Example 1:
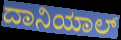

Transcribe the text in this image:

ದಾನಿಯಾಲ್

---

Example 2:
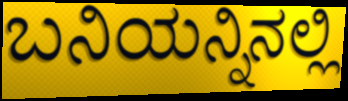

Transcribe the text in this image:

ಬನಿಯನ್ನಿನಲ್ಲಿ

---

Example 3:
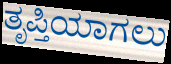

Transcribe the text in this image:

ತೃಪ್ತಿಯಾಗಲು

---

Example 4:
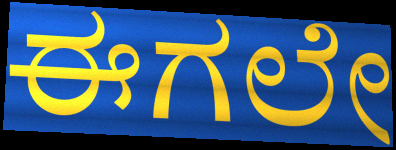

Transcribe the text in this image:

ಈಗಲೇ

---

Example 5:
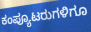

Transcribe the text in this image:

ಕಂಪ್ಯೂಟರುಗಳಿಗೂ